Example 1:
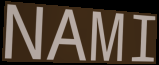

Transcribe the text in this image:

NAMI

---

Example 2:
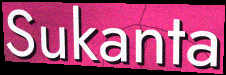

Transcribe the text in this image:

Sukanta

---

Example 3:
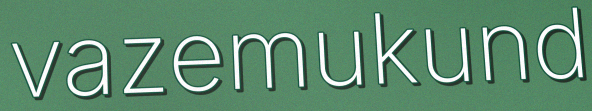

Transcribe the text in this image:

vazemukund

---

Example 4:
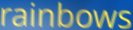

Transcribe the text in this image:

rainbows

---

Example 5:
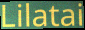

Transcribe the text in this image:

Lilatai